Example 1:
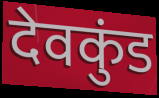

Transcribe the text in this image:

देवकुंड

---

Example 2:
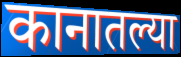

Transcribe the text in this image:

कानातल्या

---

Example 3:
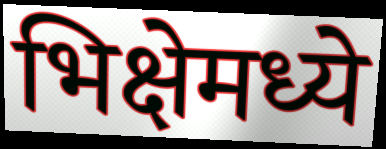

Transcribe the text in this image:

भिक्षेमध्ये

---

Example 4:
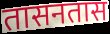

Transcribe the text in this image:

तासनतास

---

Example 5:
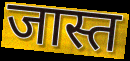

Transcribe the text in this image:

जास्त